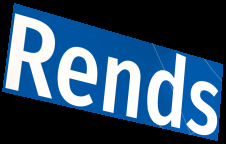
Rends